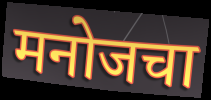
मनोजचा